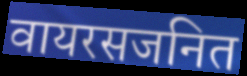
वायरसजनित